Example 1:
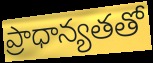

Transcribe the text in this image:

ప్రాధాన్యతతో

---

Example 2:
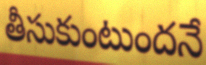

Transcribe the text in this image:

తీసుకుంటుందనే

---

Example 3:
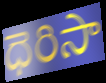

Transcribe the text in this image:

ధెరిసా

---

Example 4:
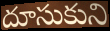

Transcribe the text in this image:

దూసుకుని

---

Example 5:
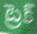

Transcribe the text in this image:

ట్రెక్